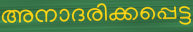
അനാദരിക്കപ്പെട്ട